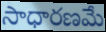
సాధారణమే